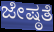
ಜೇಷ್ಠತೆ